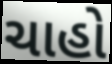
ચાહો